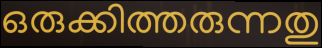
ഒരുക്കിത്തരുന്നതു